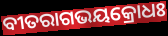
ବୀତରାଗଭୟକ୍ରୋଧଃ